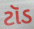
ટૉડ